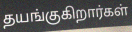
தயங்குகிறார்கள்